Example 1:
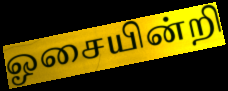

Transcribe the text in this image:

ஓசையின்றி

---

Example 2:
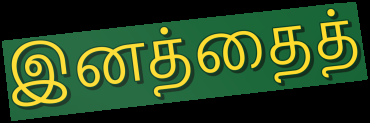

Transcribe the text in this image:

இனத்தைத்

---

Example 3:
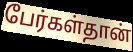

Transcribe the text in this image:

பேர்கள்தான்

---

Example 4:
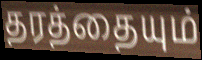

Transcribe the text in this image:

தரத்தையும்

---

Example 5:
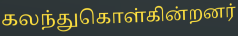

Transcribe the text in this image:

கலந்துகொள்கின்றனர்